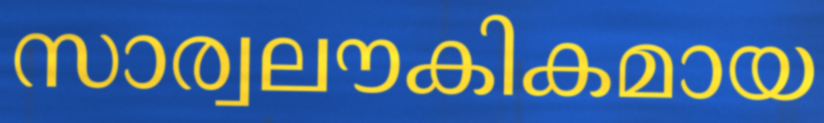
സാര്വലൗകികമായ